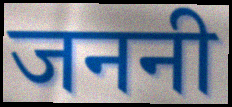
जननी